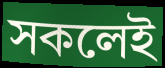
সকলেই